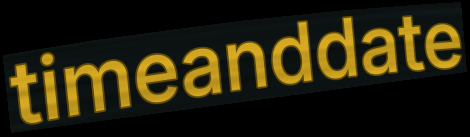
timeanddate